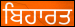
ਬਿਹਾਰਤ